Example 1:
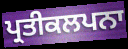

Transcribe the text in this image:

ਪ੍ਰਤੀਕਲਪਨਾ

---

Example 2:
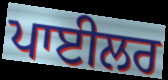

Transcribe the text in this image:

ਪਾਈਲਰ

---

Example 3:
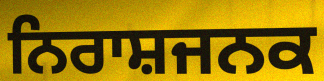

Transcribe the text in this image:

ਨਿਰਾਸ਼ਜਨਕ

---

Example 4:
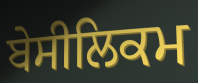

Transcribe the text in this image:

ਬੇਸੀਲਿਕਮ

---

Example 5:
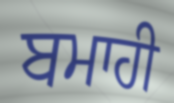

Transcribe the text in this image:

ਬਮਾਹੀ